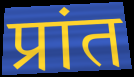
प्रांत